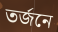
তর্জনে